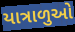
યાત્રાળુઓ